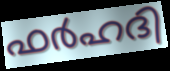
ഫർഹദി